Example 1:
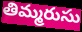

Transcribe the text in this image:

తిమ్మరుసు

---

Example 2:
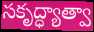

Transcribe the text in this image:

సకృద్ధ్యాత్వా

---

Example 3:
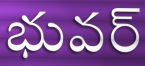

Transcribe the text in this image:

భువర్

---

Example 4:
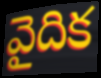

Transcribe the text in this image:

వైదిక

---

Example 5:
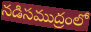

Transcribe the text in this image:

నడిసముద్రంలో